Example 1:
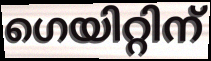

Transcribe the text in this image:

ഗെയിറ്റിന്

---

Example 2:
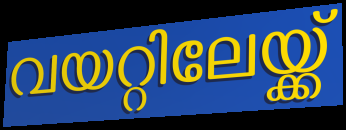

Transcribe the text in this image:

വയറ്റിലേയ്ക്ക്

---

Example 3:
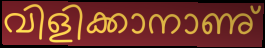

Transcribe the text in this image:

വിളിക്കാനാണു്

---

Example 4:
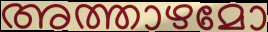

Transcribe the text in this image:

അത്താഴമോ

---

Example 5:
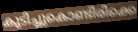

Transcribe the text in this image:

കുടിച്ചുകൊണ്ടിരിക്കെ